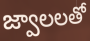
జ్వాలలతో